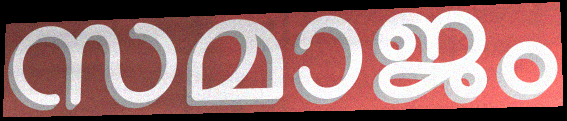
സമാജം